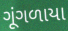
ગૂંગળાયા